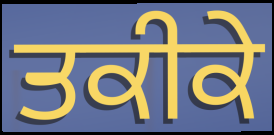
ਤਕੀਕੇ